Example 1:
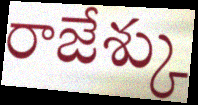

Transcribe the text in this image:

రాజేశ్కు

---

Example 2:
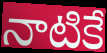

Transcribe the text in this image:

నాటికే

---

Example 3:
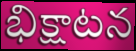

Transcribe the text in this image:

భిక్షాటన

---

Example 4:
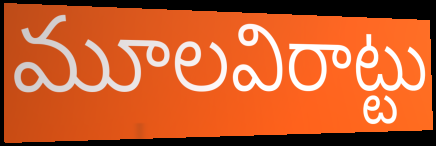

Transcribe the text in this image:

మూలవిరాట్టు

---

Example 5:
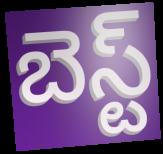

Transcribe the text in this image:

బెస్ట్